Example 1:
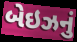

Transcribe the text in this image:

બેઇઝનું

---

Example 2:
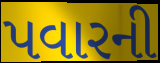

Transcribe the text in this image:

પવારની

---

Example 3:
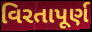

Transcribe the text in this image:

વિરતાપૂર્ણ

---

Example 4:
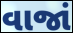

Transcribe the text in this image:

વાજાં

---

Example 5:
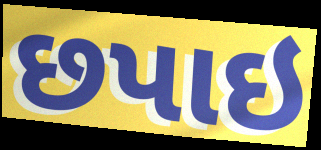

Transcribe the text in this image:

છપાઇ